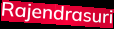
Rajendrasuri